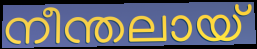
നീന്തലായ്